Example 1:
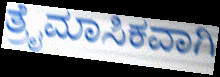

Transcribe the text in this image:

ತ್ರೈಮಾಸಿಕವಾಗಿ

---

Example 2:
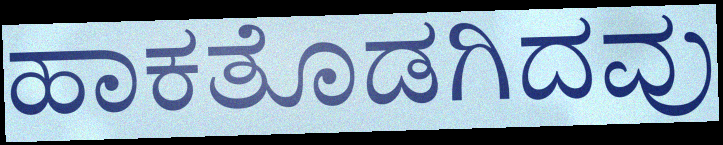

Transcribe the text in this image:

ಹಾಕತೊಡಗಿದವು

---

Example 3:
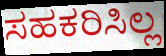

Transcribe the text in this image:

ಸಹಕರಿಸಿಲ್ಲ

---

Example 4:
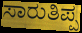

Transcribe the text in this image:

ಸಾರುತಿಪ್ಪ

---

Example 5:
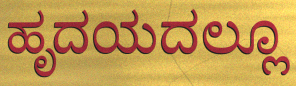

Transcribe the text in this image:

ಹೃದಯದಲ್ಲೂ